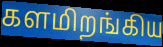
களமிறங்கிய